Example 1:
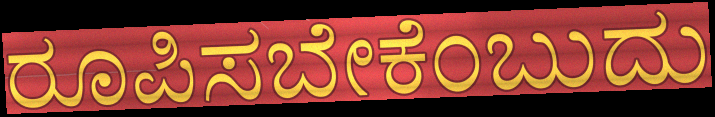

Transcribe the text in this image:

ರೂಪಿಸಬೇಕೆಂಬುದು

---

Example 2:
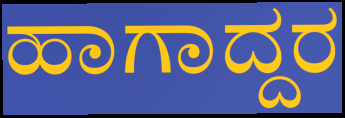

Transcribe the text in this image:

ಹಾಗಾದ್ದರ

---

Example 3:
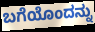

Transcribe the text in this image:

ಬಗೆಯೊಂದನ್ನು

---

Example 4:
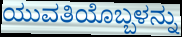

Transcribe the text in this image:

ಯುವತಿಯೊಬ್ಬಳನ್ನು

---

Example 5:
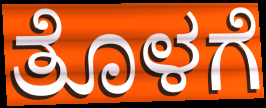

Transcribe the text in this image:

ತೊಳಗೆ